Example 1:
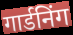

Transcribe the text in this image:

गार्डनिंग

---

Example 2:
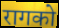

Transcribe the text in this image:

रागको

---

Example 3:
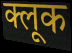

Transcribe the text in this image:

क्लूक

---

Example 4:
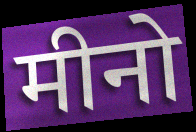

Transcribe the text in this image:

मीनो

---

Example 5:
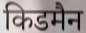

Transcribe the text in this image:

किडमैन